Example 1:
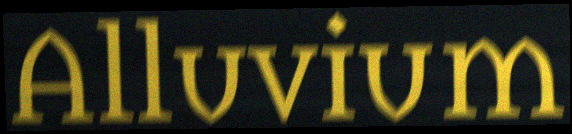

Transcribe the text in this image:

Alluvium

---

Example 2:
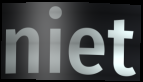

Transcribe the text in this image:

niet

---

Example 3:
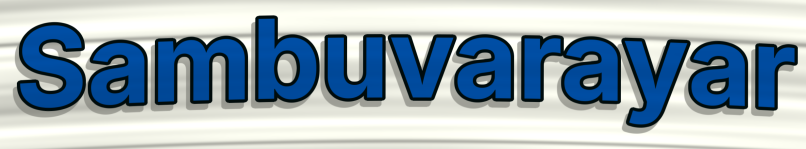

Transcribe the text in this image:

Sambuvarayar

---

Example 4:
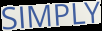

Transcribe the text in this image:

SIMPLY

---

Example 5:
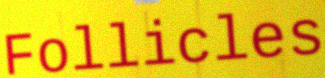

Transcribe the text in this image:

Follicles